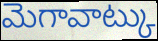
మెగావాట్కు